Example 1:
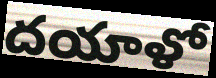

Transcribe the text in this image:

దయాళో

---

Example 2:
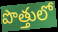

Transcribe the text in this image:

పొత్తులో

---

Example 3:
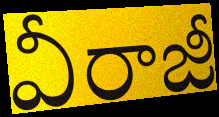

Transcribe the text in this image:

వీరాజీ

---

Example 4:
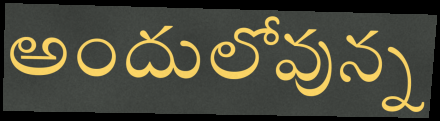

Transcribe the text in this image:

అందులోవున్న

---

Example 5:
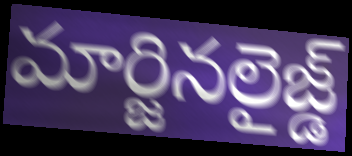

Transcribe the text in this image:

మార్జినలైజ్డ్